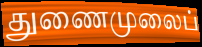
துணைமுலைப்